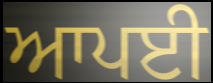
ਆਪਈ